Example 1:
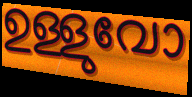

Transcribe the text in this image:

ഉള്ളുവോ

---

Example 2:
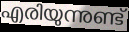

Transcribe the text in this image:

എരിയുന്നുണ്ട്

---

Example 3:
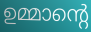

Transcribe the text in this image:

ഉമ്മാന്റെ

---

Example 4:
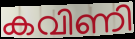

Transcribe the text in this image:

കവിണി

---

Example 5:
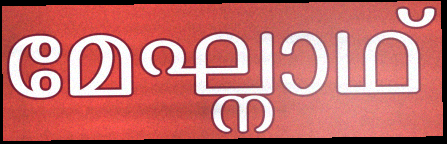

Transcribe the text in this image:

മേഘ്നാഥ്